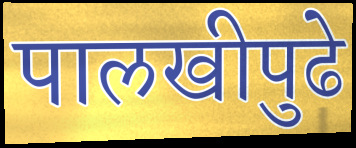
पालखीपुढे